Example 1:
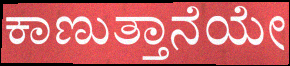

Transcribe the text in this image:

ಕಾಣುತ್ತಾನೆಯೇ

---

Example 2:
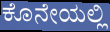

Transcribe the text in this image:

ಕೊನೇಯಲ್ಲಿ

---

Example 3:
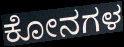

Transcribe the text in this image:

ಕೋನಗಳ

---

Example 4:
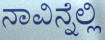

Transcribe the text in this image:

ನಾವಿನ್ನೆಲ್ಲಿ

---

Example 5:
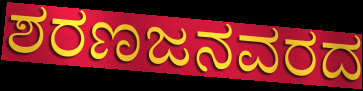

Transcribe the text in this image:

ಶರಣಜನವರದ